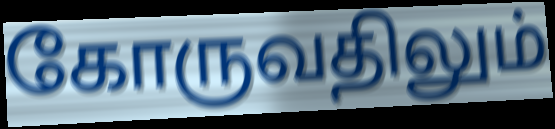
கோருவதிலும்